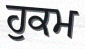
ਹੁਕਮ